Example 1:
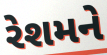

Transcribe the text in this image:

રેશમને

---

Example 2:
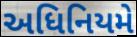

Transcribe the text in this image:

અધિનિયમે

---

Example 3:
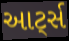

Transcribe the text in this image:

આટ્‌ર્સ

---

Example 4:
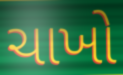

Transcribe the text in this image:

ચાખો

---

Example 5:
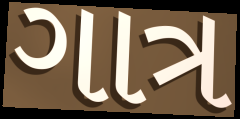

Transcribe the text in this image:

ગાત્ર